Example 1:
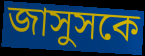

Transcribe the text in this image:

জাসুসকে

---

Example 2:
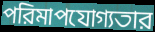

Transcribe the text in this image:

পরিমাপযোগ্যতার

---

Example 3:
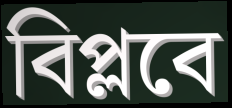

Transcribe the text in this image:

বিপ্লবে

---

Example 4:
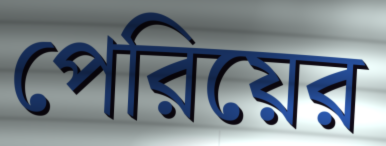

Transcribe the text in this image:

পেরিয়ের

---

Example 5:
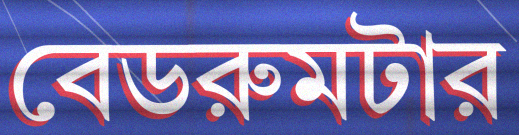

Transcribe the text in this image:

বেডরুমটার